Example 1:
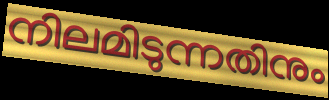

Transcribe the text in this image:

നിലമിടുന്നതിനും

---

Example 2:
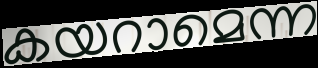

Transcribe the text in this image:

കയറാമെന്ന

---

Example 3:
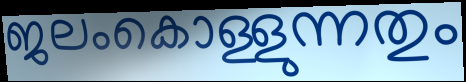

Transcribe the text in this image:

ജലംകൊള്ളുന്നതും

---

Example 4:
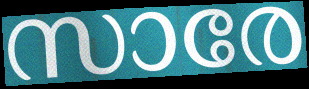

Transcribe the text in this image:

സാരേ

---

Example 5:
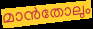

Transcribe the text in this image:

മാൻതോലും